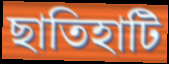
ছাতিহাটি